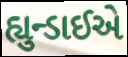
હ્યુન્ડાઈએ